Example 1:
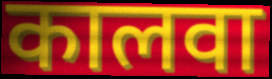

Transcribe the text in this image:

कालवा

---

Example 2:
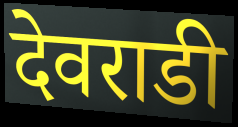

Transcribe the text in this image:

देवराडी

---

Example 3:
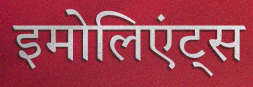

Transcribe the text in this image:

इमोलिएंट्स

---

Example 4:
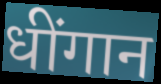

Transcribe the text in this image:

धींगान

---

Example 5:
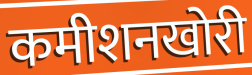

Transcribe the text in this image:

कमीशनखोरी